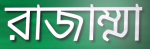
রাজাম্মা